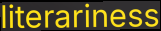
literariness